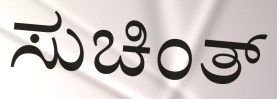
ಸುಚಿಂತ್